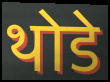
थोडे